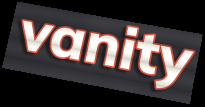
vanity